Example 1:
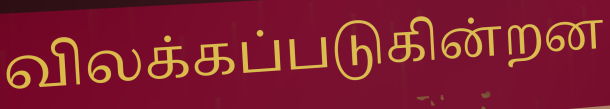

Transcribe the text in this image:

விலக்கப்படுகின்றன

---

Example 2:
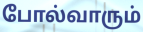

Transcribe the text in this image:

போல்வாரும்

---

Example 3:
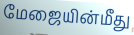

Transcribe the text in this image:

மேஜையின்மீது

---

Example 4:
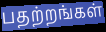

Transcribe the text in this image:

பதற்றங்கள்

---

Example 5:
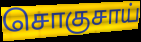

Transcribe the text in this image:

சொகுசாய்